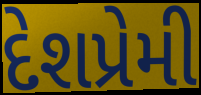
દેશપ્રેમી